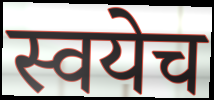
स्वयेच